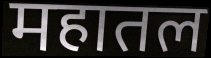
महातल